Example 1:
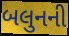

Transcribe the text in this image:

બલુનની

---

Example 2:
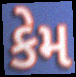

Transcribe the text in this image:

કેમ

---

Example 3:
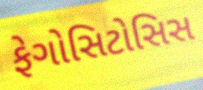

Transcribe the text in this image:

ફેગોસિટોસિસ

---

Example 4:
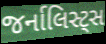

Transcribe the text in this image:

જર્નાલિસ્ટ્સ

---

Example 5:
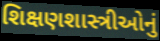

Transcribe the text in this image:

શિક્ષણશાસ્ત્રીઓનું